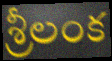
శ్రీలంక